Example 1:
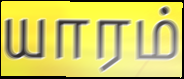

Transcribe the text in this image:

யாரம்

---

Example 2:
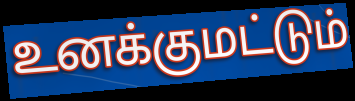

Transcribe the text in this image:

உனக்குமட்டும்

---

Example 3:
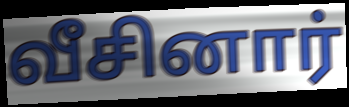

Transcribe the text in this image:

வீசினார்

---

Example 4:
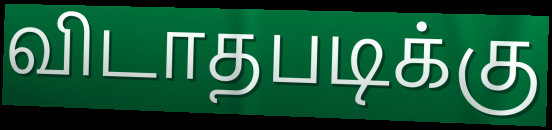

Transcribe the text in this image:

விடாதபடிக்கு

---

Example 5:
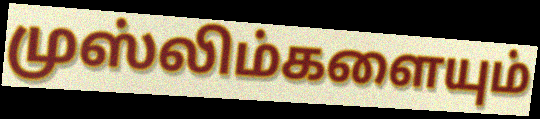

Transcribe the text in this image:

முஸ்லிம்களையும்